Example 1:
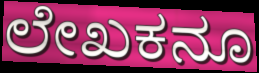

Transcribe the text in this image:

ಲೇಖಕನೂ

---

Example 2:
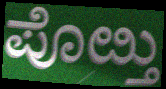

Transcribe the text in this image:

ಪೊೞ್ತು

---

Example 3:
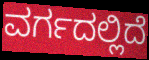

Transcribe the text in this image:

ವರ್ಗದಲ್ಲಿದೆ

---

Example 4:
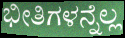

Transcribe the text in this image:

ಭೀತಿಗಳನ್ನೆಲ್ಲ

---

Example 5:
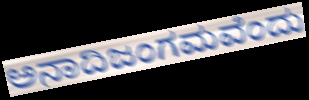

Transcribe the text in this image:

ಅನಾದಿಜಂಗಮವೆಂದು